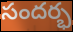
సందర్భ